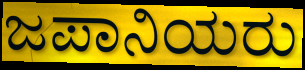
ಜಪಾನಿಯರು